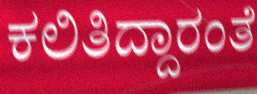
ಕಲಿತಿದ್ದಾರಂತೆ